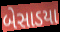
બેસાડયા